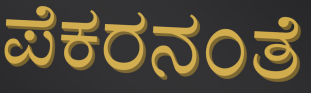
ಪೆಕರನಂತೆ